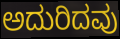
ಅದುರಿದವು